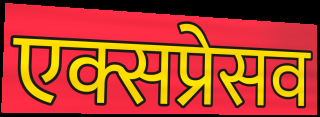
एक्सप्रेसव